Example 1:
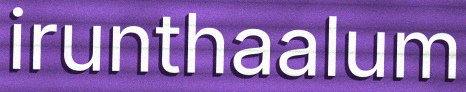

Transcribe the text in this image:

irunthaalum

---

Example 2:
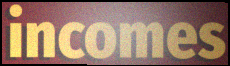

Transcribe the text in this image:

incomes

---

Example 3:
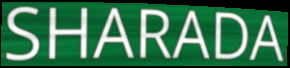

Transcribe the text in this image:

SHARADA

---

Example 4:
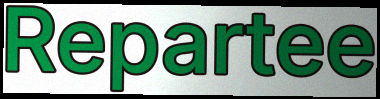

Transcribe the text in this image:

Repartee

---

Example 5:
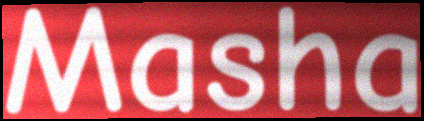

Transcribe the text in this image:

Masha